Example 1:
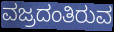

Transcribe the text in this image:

ವಜ್ರದಂತಿರುವ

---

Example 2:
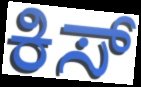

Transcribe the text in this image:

ಕಿಸ್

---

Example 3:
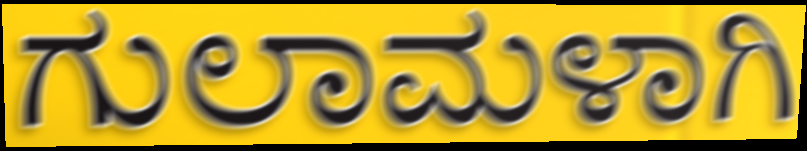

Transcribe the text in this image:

ಗುಲಾಮಳಾಗಿ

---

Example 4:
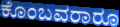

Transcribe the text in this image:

ಕೊಂಬವರಾರೂ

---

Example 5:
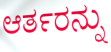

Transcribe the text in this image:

ಆರ್ತರನ್ನು